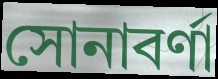
সোনাবর্ণা